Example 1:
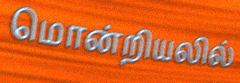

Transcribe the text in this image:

மொன்றியலில்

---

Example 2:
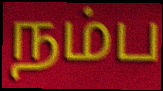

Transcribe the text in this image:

நம்ப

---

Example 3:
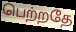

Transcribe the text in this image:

பெற்றதே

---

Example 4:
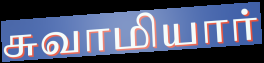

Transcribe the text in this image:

சுவாமியார்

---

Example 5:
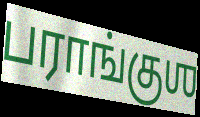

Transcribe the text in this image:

பராங்குஶ